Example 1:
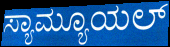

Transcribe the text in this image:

ಸ್ಯಾಮ್ಯೂಯಲ್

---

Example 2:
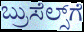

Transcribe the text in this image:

ಬ್ರುಸೆಲ್ಸ್‌ಗೆ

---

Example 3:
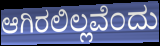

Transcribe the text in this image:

ಆಗಿರಲಿಲ್ಲವೆಂದು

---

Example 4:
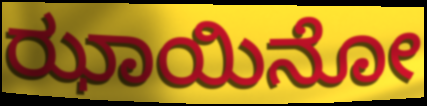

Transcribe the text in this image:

ಝಾಯಿನೋ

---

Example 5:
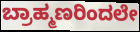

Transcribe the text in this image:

ಬ್ರಾಹ್ಮಣರಿಂದಲೇ